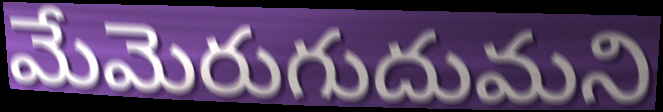
మేమెరుగుదుమని